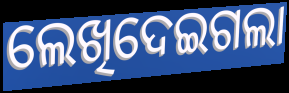
ଲେଖିଦେଇଗଲା